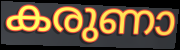
കരുണാ